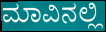
ಮಾವಿನಲ್ಲಿ